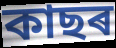
কাছৰ